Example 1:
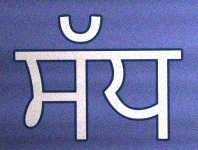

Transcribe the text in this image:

ਸੱਧ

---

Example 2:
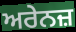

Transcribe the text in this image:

ਅਰੇਨਜ਼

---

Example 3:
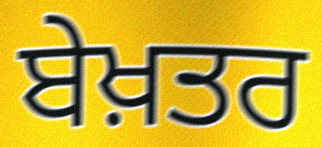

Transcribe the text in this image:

ਬੇਖ਼ਤਰ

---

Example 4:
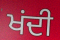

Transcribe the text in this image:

ਖਂਦੀ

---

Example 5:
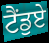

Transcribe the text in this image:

ਟੈਂਡੁਏ